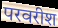
परवरीश